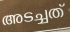
അടച്ചത്